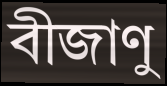
বীজাণু